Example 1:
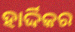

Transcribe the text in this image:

ହାର୍ଦ୍ଦିକର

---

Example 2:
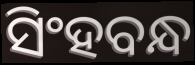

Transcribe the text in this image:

ସିଂହବନ୍ଧ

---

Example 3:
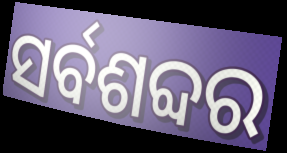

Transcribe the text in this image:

ସର୍ବଶବ୍ଦର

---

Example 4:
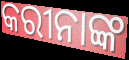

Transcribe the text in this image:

କରୀନାଙ୍କ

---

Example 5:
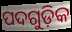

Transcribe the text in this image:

ପଦଗୁଡ଼ିକ